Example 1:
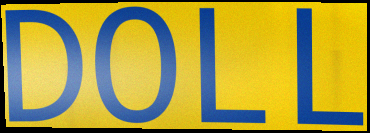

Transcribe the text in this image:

DOLL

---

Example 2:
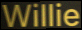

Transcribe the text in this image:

Willie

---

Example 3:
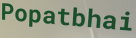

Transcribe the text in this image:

Popatbhai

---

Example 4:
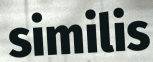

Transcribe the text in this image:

similis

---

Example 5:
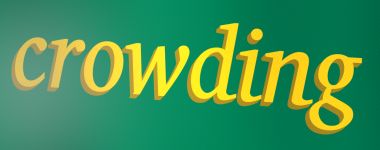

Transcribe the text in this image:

crowding